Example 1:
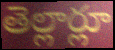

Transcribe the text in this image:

తెల్లార్లూ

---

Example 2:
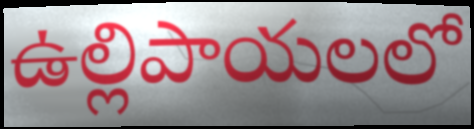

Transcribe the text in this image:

ఉల్లిపాయలలో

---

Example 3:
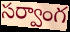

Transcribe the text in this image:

సర్వాంగ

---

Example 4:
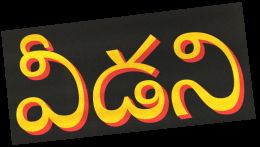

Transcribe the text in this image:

వీడని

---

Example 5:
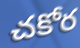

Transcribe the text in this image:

చకోర